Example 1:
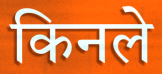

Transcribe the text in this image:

किनले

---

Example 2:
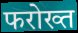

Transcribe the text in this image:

फरोख्‍त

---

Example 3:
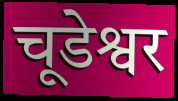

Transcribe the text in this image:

चूडेश्वर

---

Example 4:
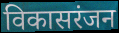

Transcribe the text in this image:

विकासरंजन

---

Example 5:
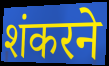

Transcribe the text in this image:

शंकरने